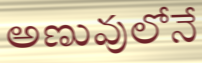
అణువులోనే